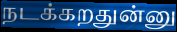
நடக்கறதுன்னு